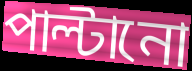
পাল্টানো